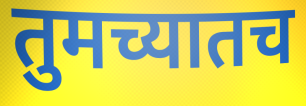
तुमच्यातच